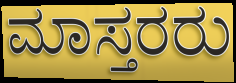
ಮಾಸ್ತರರು